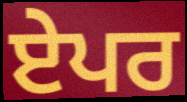
ਏਪਰ